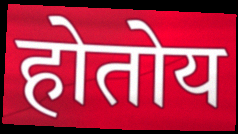
होतोय